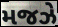
મજઝે